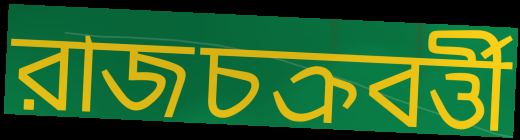
রাজচক্রবর্ত্তী